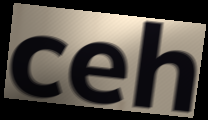
ceh